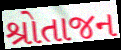
શ્રોતાજન